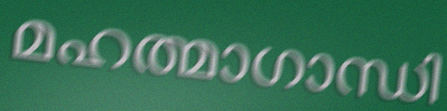
മഹത്മാഗാന്ധി